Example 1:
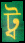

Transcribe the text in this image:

ট্ব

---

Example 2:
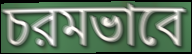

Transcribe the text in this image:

চরমভাবে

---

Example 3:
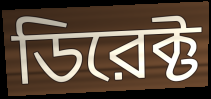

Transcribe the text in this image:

ডিরেক্ট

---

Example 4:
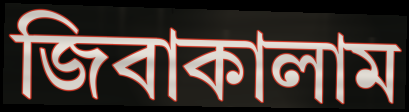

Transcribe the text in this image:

জিবাকালাম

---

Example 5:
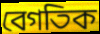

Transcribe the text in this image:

বেগতিক